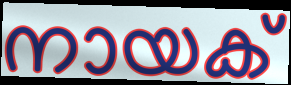
നായക്